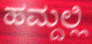
ಹಮ್ದಲ್ಲಿ